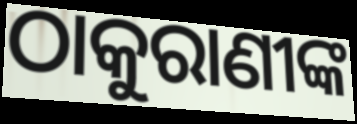
ଠାକୁରାଣୀଙ୍କ